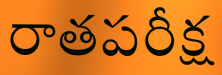
రాతపరీక్ష